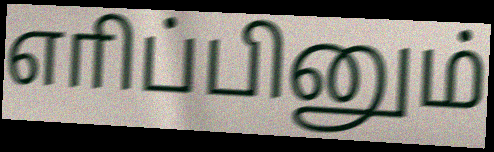
எரிப்பினும்